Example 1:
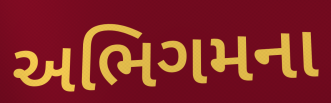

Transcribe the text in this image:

અભિગમના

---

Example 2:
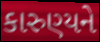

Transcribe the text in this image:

કારુણ્યને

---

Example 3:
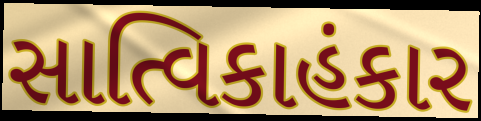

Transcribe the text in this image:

સાત્વિકાહંકાર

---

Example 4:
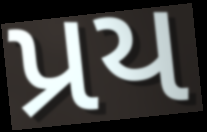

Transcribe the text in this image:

પ્રય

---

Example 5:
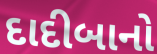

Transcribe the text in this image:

દાદીબાનો